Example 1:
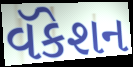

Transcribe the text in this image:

વૅકેશન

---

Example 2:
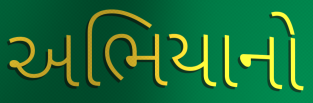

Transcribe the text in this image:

અભિયાનો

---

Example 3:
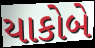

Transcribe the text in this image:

યાકોબે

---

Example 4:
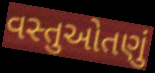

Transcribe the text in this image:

વસ્તુઓતણું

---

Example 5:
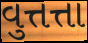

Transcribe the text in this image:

વુત્તત્તા